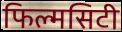
फिल्मसिटी